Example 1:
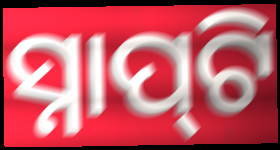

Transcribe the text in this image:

ସ୍ନାପ୍‍ଟି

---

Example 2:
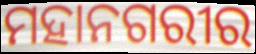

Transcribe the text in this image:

ମହାନଗରୀର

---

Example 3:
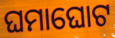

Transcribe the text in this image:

ଘମାଘୋଟ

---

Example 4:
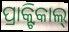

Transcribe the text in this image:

ପ୍ରାକ୍ଟିକାଲ୍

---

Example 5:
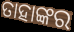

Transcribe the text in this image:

ତାହାଙ୍କର